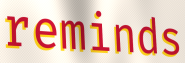
reminds